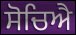
ਸੋਚਿਐ